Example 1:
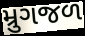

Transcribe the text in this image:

મ્રુગજળ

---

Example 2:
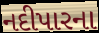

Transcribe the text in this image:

નદીપારના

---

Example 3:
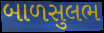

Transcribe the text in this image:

બાળસુલભ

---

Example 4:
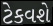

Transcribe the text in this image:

ટેકવશે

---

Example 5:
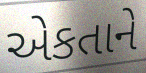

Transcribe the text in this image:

એકતાને